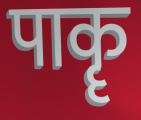
पाकॄ